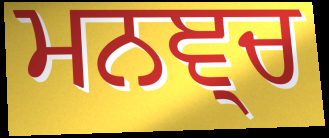
ਮਨਞ੍ਚ